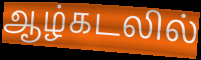
ஆழ்கடலில்